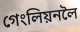
গেংলিয়নলৈ